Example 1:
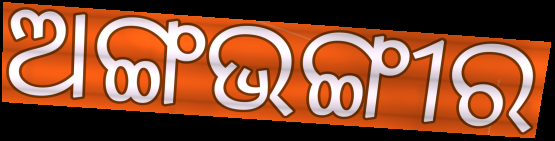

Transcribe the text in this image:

ଅଙ୍ଗଭଙ୍ଗୀର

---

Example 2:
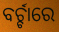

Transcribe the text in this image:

ବର୍ଚ୍ଚାରେ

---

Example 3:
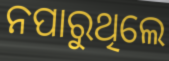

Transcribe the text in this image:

ନପାରୁଥିଲେ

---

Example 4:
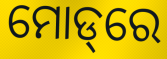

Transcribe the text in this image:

ମୋଡ୍‌ରେ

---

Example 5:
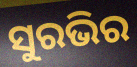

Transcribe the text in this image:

ସୁରଭିର